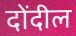
दोंदील